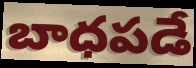
బాధపడే